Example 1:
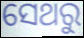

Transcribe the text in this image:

ସେଥରୁ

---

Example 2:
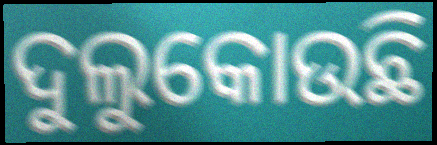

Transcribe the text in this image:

ଦୁଲୁକୋଉଛି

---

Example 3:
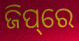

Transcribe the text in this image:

ଜିପ୍‌ରେ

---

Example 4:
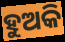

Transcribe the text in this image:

ହୁଅକି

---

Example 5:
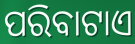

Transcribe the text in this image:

ପରିବାଟାଏ